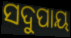
ସଦୁପାୟ